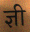
ज्ञी